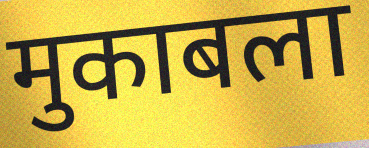
मुकाबला